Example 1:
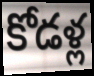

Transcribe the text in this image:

కోడళ్ల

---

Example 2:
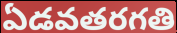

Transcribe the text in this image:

ఏడవతరగతి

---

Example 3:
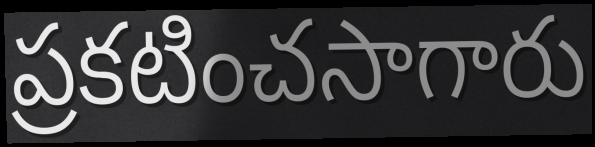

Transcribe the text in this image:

ప్రకటించసాగారు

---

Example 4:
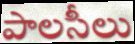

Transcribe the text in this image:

పాలసీలు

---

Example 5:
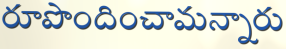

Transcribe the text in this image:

రూపొందించామన్నారు